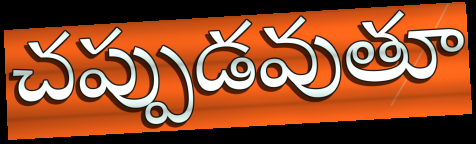
చప్పుడవుతూ